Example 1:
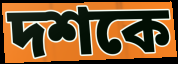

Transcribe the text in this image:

দশকে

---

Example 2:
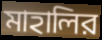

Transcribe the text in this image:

মাহালির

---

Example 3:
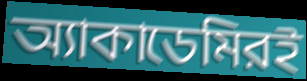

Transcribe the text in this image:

অ্যাকাডেমিরই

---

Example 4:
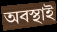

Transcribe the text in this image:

অবস্থাই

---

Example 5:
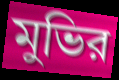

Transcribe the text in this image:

মুভির